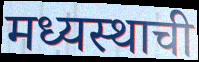
मध्यस्थाची